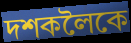
দশকলৈকে